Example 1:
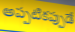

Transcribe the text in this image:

అప్పటికప్పుడే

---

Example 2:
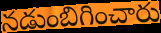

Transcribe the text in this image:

నడుంబిగించారు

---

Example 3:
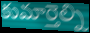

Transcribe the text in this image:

కుమార్తెల్ని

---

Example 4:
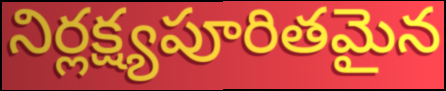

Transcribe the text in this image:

నిర్లక్ష్యపూరితమైన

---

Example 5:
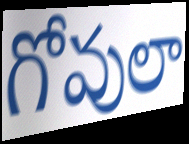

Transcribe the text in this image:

గోవులా